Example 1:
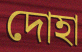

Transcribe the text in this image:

দোহা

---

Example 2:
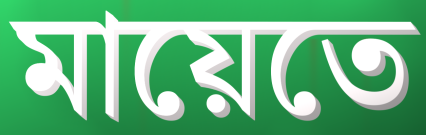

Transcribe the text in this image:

মায়েতে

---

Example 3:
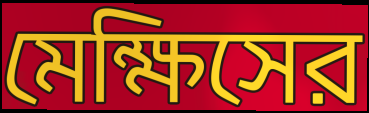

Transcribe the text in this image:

মেক্ষিসের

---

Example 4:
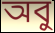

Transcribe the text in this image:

অবু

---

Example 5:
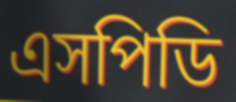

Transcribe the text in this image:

এসপিডি